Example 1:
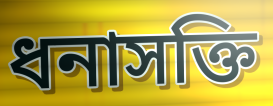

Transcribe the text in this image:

ধনাসক্তি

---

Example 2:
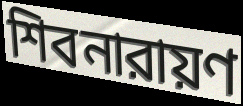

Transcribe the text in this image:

শিবনারায়ণ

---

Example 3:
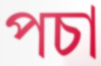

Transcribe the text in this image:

পচা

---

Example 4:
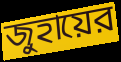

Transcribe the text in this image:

জুহায়ের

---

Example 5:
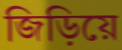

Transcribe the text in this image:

জিড়িয়ে